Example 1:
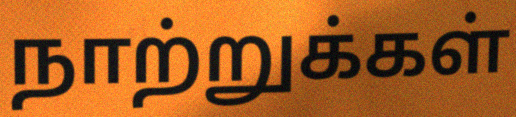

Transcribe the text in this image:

நாற்றுக்கள்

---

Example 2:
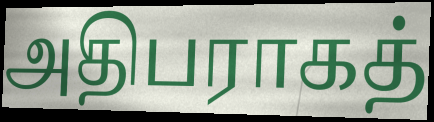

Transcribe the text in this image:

அதிபராகத்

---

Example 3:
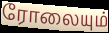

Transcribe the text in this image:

ரோலையும்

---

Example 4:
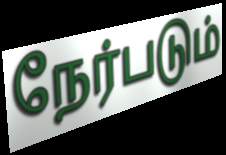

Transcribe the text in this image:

நேர்படும்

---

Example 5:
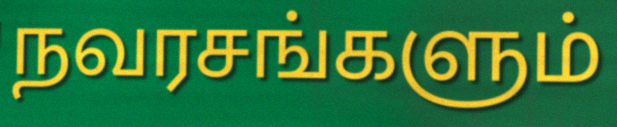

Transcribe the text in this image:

நவரசங்களும்